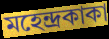
মহেন্দ্রকাকা